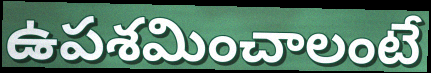
ఉపశమించాలంటే